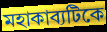
মহাকাব্যটিকে